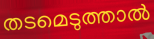
തടമെടുത്താൽ